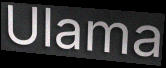
Ulama